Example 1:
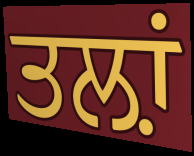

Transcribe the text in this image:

ਤਲ਼ਾਂ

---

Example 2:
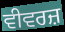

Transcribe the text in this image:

ਵੀਵਰਜ਼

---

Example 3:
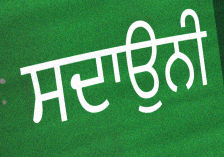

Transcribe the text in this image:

ਸਦਾਉਨੀ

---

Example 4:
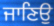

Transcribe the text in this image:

ਜਾਣਿਉ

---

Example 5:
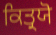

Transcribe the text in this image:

ਕਿਤ੍ਰਯੋ